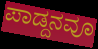
ಪಾಡ್ದನವೂ